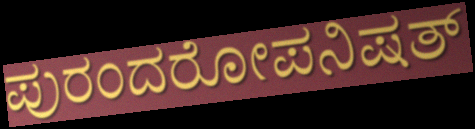
ಪುರಂದರೋಪನಿಷತ್